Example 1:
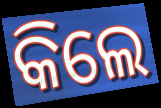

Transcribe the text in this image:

କିଲେ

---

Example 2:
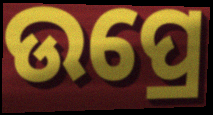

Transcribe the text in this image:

ଉପ୍ରେ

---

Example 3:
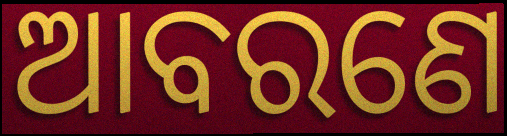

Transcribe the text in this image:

ଆବରଣେ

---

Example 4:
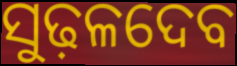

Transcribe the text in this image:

ସୁଢ଼ଳଦେବ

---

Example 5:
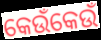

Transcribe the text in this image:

କେଉଁକେଉଁ